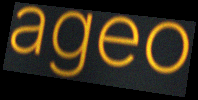
ageo